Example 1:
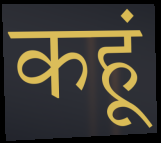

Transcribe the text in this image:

कहूं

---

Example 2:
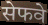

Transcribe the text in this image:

सेफवे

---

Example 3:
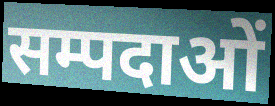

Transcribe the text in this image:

सम्पदाओं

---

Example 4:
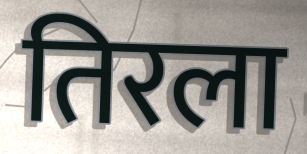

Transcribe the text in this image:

तिरला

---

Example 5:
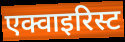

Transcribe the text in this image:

एक्वाइरिस्ट